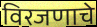
विरजणाचे